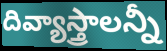
దివ్యాస్త్రాలన్నీ